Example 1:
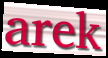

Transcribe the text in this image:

arek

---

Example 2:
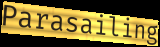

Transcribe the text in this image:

Parasailing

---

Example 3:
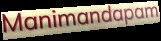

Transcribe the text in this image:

Manimandapam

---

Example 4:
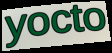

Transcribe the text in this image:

yocto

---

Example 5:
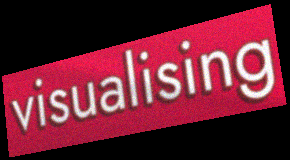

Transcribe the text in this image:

visualising